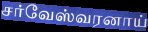
சர்வேஸ்வரனாய்